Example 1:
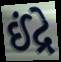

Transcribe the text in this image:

ઈંદ્રે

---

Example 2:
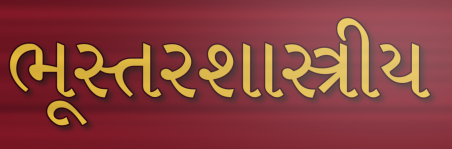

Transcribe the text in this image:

ભૂસ્તરશાસ્ત્રીય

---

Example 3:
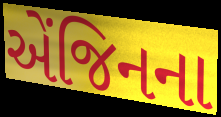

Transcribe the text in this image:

એંજિનના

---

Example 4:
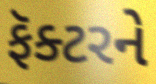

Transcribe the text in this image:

ફૅક્ટરને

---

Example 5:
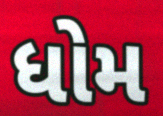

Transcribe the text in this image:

ધોમ